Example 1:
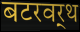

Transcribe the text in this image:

बटरवर्थ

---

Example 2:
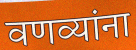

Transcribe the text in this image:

वणव्यांना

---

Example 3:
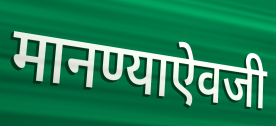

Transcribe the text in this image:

मानण्याऐवजी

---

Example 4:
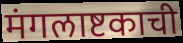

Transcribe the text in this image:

मंगलाष्टकाची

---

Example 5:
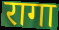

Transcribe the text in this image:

रागा